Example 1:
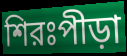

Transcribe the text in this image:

শিরঃপীড়া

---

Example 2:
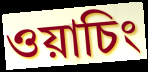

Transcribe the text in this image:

ওয়াচিং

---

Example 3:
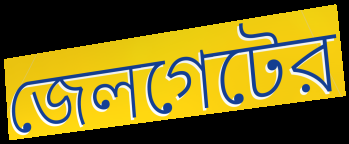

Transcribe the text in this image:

জেলগেটের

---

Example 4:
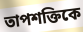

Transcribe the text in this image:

তাপশক্তিকে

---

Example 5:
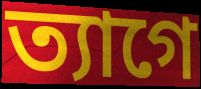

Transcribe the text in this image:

ত্যাগে